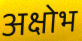
अक्षोभ